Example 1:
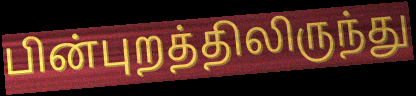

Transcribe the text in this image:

பின்புறத்திலிருந்து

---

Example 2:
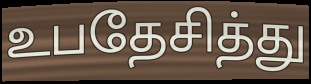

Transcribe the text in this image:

உபதேசித்து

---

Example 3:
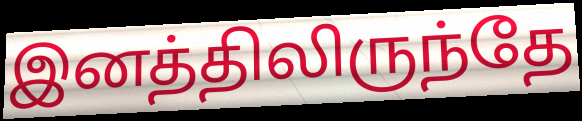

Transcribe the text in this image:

இனத்திலிருந்தே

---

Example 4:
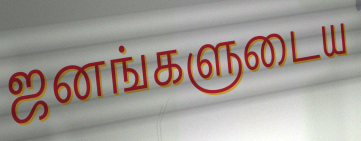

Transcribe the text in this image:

ஜனங்களுடைய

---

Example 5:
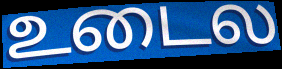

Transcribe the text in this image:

உடைல